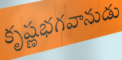
కృష్ణభగవానుడు